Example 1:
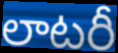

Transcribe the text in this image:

లాటరీ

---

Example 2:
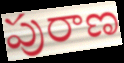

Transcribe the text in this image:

పురాణ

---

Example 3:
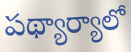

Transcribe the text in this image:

పథ్యార్యాలో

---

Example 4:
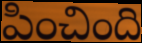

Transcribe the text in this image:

పించింది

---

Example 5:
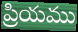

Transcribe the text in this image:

ప్రియము